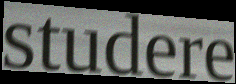
studere